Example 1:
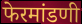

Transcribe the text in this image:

फेरमांडणी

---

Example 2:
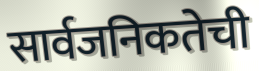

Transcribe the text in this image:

सार्वजनिकतेची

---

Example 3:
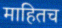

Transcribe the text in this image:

माहितच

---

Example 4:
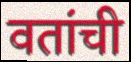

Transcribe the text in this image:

वतांची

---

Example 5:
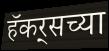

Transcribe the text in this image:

हॅकर्सच्या